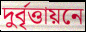
দুর্বৃত্তায়নে